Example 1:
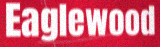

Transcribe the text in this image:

Eaglewood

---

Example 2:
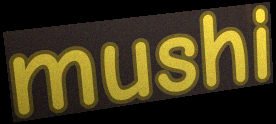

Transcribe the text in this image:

mushi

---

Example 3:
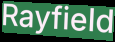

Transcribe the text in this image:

Rayfield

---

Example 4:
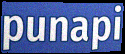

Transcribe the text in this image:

punapi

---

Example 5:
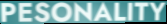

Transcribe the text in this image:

PESONALITY